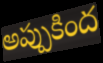
అప్పుకింద